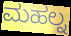
ಮಹಲ್ನ